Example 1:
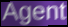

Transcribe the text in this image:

Agent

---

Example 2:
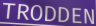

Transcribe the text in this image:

TRODDEN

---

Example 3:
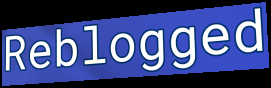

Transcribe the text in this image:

Reblogged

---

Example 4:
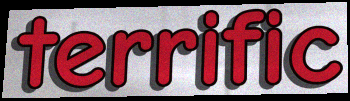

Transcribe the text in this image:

terrific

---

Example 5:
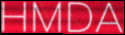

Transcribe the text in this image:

HMDA